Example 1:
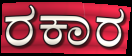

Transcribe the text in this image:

ರಕಾರ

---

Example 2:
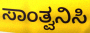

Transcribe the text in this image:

ಸಾಂತ್ವನಿಸಿ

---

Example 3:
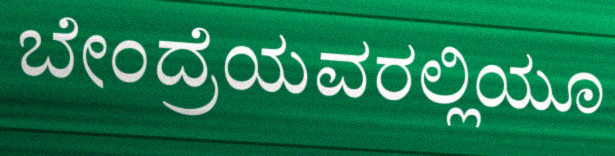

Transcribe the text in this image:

ಬೇಂದ್ರೆಯವರಲ್ಲಿಯೂ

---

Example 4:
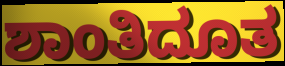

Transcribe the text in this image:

ಶಾಂತಿದೂತ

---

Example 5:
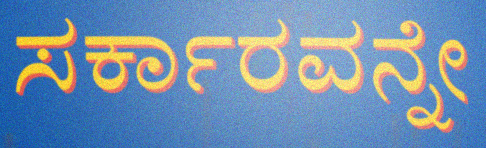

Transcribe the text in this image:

ಸರ್ಕಾರವನ್ನೇ